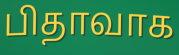
பிதாவாக